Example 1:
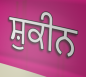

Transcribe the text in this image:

ਸ਼ੁਕੀਨ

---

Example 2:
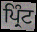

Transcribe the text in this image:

ਪ੍ਰਿੰਟ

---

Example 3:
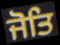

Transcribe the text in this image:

ਜੋਤਿ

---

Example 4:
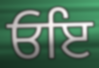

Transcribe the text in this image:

ਓਇ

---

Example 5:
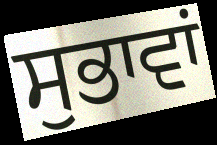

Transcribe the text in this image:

ਸੁਭਾਵਾਂ